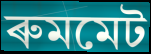
ৰুমমেট